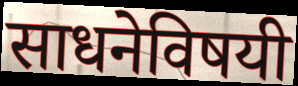
साधनेविषयी